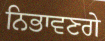
ਨਿਭਾਵਣਗੇ